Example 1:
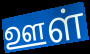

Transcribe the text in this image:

ஊள்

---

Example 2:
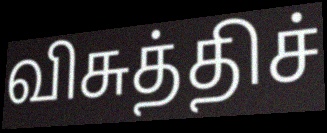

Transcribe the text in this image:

விசுத்திச்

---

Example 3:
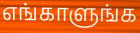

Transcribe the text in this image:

எங்காளுங்க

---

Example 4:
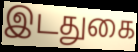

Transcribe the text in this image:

இடதுகை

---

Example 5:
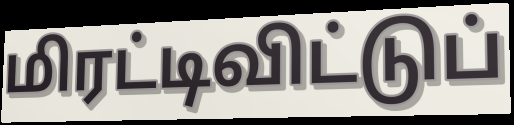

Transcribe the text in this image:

மிரட்டிவிட்டுப்